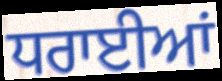
ਧਰਾਈਆਂ